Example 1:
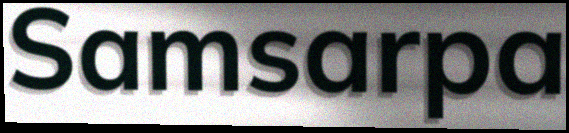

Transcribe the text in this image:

Samsarpa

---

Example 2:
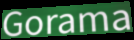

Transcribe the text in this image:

Gorama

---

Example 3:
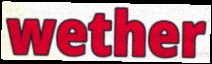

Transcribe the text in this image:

wether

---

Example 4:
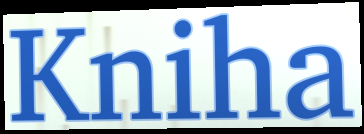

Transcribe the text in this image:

Kniha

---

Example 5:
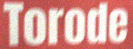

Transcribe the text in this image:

Torode